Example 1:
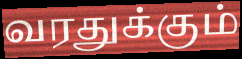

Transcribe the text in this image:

வரதுக்கும்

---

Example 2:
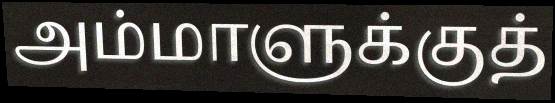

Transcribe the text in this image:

அம்மாளுக்குத்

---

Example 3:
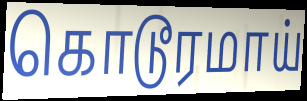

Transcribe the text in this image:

கொடூரமாய்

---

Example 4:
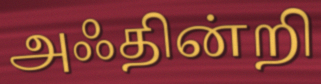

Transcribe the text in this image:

அஃதின்றி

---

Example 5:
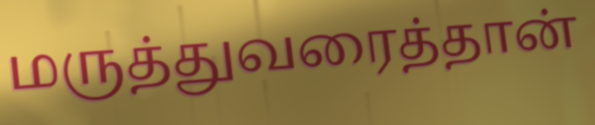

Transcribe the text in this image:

மருத்துவரைத்தான்